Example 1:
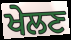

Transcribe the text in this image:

ਖੇਲਣ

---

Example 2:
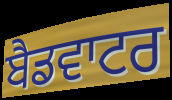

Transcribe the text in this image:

ਬੈਡਵਾਟਰ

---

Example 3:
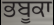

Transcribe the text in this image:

ਭਬੂਕਾ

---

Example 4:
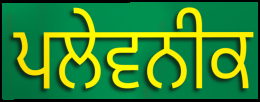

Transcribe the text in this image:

ਪਲੇਵਨੀਕ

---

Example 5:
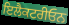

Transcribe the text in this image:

ਇਲੈਕਟਰੀਓਨ